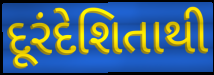
દૂરંદેશિતાથી